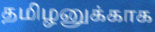
தமிழனுக்காக